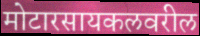
मोटारसायकलवरील